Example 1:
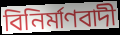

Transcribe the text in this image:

বিনিৰ্মাণবাদী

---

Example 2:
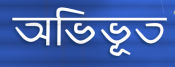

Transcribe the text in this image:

অভিভূত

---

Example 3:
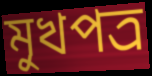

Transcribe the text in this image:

মুখপত্ৰ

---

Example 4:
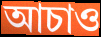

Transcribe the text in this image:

আচাও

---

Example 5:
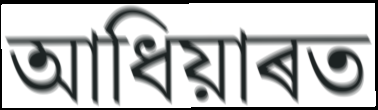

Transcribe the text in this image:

আধিয়াৰত